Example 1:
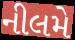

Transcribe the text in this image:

નીલમે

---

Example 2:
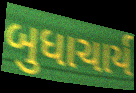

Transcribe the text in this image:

બુધાચાર્ય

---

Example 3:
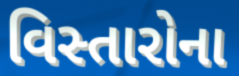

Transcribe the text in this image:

વિસ્તારોના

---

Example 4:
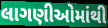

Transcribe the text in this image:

લાગણીઓમાંથી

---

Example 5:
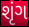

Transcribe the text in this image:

શૃંગ